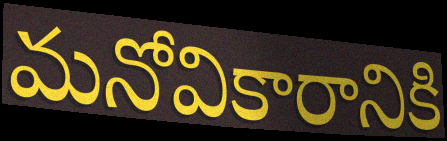
మనోవికారానికి